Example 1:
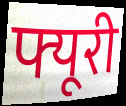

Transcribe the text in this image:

फ्यूरी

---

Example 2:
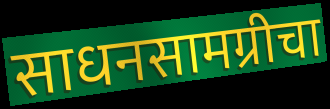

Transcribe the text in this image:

साधनसामग्रीचा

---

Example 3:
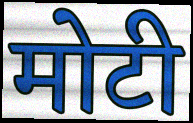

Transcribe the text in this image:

मोटी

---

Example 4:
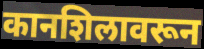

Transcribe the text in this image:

कानशिलावरून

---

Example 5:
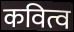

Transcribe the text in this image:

कवित्व